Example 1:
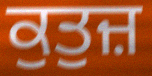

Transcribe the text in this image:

ਕੁਤੁਜ਼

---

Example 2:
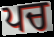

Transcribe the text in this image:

ਪਚ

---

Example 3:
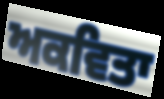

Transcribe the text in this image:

ਅਕਵਿਤਾ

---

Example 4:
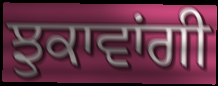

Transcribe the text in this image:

ਝੁਕਾਵਾਂਗੀ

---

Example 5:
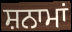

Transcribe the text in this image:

ਸ਼ਨਾਮਾਂ